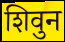
शिवुन